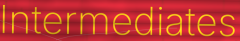
Intermediates